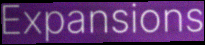
Expansions